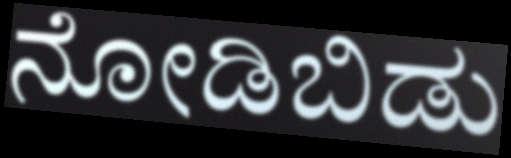
ನೋಡಿಬಿಡು